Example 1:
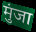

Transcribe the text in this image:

मुंजा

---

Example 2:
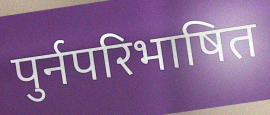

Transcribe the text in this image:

पुर्नपरिभाषित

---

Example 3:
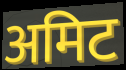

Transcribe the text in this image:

अमिट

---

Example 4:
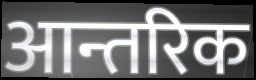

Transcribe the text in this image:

आन्तरिक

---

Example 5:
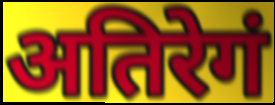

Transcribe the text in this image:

अतिरेगं